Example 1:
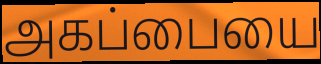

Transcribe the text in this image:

அகப்பையை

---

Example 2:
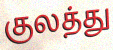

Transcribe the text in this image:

குலத்து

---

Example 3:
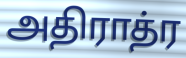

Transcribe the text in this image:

அதிராத்ர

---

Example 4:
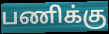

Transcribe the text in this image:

பணிக்கு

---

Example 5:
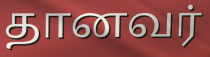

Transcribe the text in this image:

தானவர்